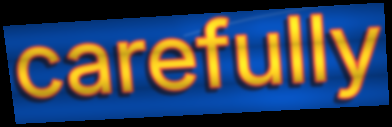
carefully